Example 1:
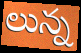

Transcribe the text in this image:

లున్న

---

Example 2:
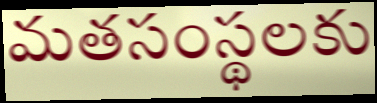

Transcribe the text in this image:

మతసంస్థలకు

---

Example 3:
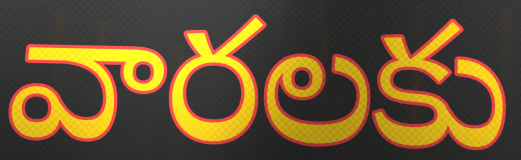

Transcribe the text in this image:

వారలకు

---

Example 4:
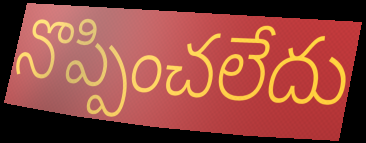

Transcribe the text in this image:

నొప్పించలేదు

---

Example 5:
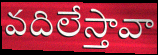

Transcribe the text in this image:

వదిలేస్తావా